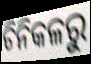
ଚିନିକଳରୁ